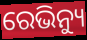
ରେଭିନ୍ୟୁ